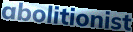
abolitionist